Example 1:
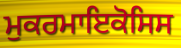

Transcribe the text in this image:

ਮੁਕਰਮਾਇਕੋਸਿਸ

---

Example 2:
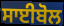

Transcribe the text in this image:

ਸਾਈਬੋਲ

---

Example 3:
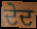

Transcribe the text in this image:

ਦੇਦ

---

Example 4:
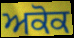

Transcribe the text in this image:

ਅਕੋਕ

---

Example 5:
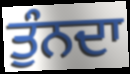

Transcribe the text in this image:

ਤੁੰਨਦਾ